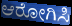
ಆರೋಗಿಸಿ